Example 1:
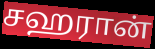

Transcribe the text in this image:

சஹரான்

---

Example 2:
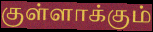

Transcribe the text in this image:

குள்ளாக்கும்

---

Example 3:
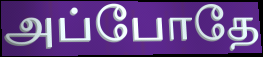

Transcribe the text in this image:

அப்போதே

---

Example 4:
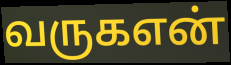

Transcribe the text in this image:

வருகஎன்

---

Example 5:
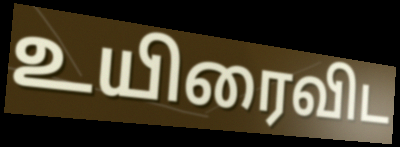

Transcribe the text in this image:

உயிரைவிட